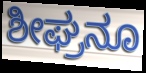
ಶೀಘ್ರನೂ